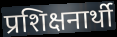
प्रशिक्षनार्थी